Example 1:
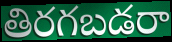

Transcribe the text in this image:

తిరగబడరా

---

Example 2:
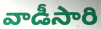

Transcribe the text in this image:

వాడీసారి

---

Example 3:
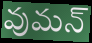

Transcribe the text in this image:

వుమన్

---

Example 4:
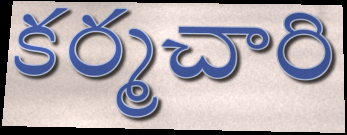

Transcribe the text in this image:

కర్మచారి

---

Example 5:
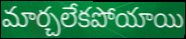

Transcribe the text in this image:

మార్చలేకపోయాయి